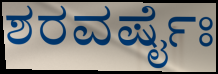
ಶರವರ್ಷೈಃ